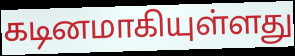
கடினமாகியுள்ளது